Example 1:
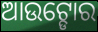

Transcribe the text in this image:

ଆଉଟ୍ଡୋର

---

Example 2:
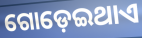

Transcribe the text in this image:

ଗୋଡ଼େଇଥାଏ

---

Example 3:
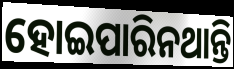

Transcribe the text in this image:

ହୋଇପାରିନଥାନ୍ତି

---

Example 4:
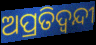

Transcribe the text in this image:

ଅପ୍ରତିଦ୍ବନ୍ଦୀ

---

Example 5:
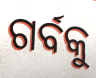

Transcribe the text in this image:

ଗର୍ବକୁ